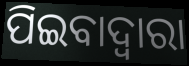
ପିଇବାଦ୍ଵାରା